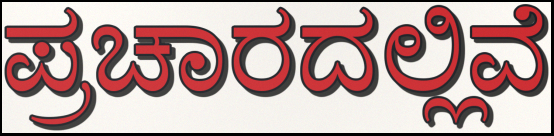
ಪ್ರಚಾರದಲ್ಲಿವೆ